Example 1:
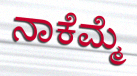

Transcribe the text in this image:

ನಾಕೆಮ್ಮೆ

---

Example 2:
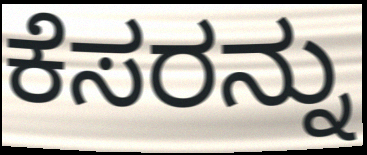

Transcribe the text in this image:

ಕೆಸರನ್ನು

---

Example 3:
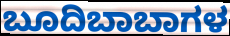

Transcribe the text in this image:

ಬೂದಿಬಾಬಾಗಳ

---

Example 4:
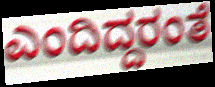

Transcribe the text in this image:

ಎಂದಿದ್ದರಂತೆ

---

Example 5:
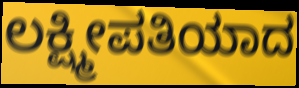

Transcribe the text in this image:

ಲಕ್ಷ್ಮೀಪತಿಯಾದ